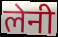
लेनी